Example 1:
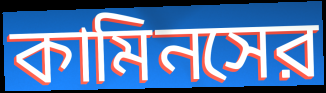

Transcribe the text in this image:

কামিনসের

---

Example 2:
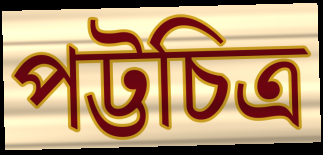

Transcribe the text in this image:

পট্টচিত্র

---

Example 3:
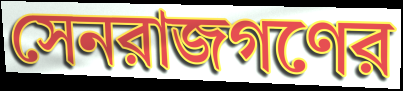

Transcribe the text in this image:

সেনরাজগণের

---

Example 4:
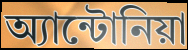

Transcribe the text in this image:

অ্যান্টোনিয়া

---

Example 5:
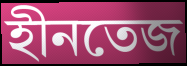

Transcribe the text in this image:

হীনতেজ